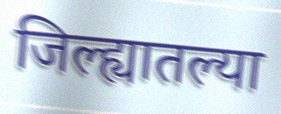
जिल्ह्यातल्या